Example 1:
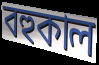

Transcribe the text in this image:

বহুকাল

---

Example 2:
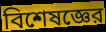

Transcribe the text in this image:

বিশেষজ্ঞের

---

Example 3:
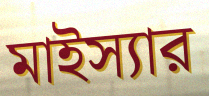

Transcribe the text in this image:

মাইস্যার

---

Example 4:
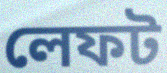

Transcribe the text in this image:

লেফট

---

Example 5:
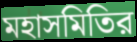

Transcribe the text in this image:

মহাসমিতির